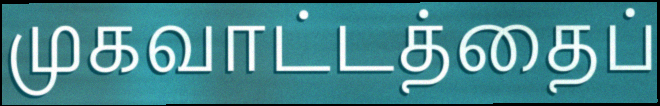
முகவாட்டத்தைப்